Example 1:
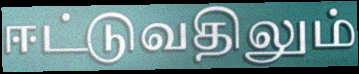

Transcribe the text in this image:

ஈட்டுவதிலும்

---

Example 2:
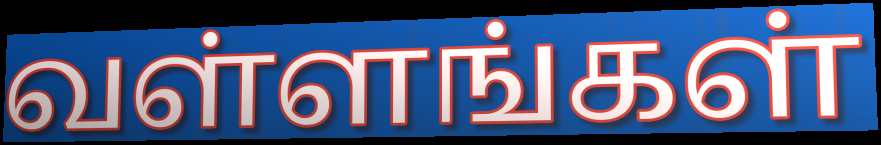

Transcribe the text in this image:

வள்ளங்கள்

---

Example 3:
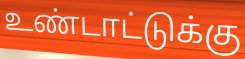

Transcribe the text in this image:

உண்டாட்டுக்கு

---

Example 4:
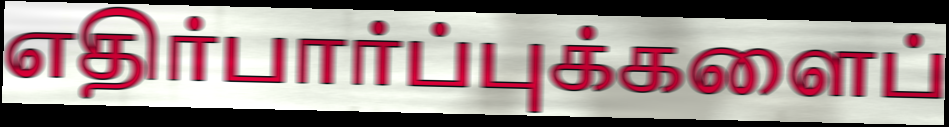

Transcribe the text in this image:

எதிர்பார்ப்புக்களைப்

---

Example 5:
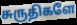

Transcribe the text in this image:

சுருதிகளே